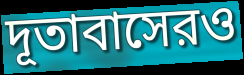
দূতাবাসেরও